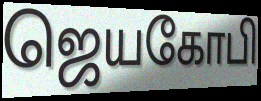
ஜெயகோபி